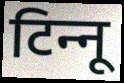
टिन्नू